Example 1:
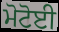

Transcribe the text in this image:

ਮੋਟੋਈ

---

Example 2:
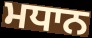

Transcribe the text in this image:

ਮਧਾਨ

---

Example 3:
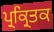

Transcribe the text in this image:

ਪ੍ਰਕ੍ਰਿਤਕ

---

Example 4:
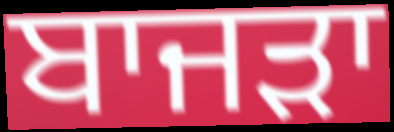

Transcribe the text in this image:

ਬਾਜਡ਼ਾ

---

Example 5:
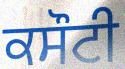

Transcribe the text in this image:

ਕਸੌਟੀ